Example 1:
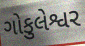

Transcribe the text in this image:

ગોકુલેશ્વર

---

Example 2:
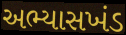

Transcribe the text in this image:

અભ્યાસખંડ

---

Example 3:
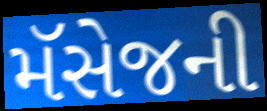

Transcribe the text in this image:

મૅસેજની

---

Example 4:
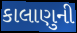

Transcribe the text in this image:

કાલાણુની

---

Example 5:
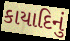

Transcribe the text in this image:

કાયાદિનું